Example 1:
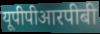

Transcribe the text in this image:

यूपीपीआरपीबी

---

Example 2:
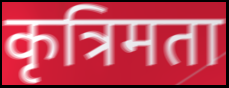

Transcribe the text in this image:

कृत्रिमता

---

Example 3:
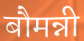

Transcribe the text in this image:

बौमन्नी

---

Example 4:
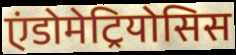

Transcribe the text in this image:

एंडोमेट्रियोसिस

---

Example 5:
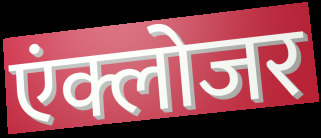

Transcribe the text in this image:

एंक्लोजर